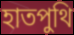
হাতপুথি